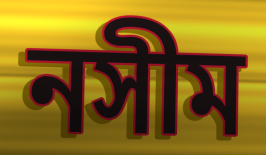
নসীম